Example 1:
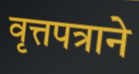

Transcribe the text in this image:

वृत्तपत्राने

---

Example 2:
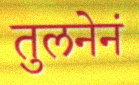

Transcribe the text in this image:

तुलनेनं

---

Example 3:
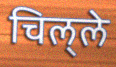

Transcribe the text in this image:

चिल्ले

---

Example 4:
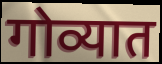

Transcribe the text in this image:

गोव्यात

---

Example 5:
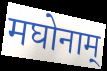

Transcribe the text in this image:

मघोनाम्